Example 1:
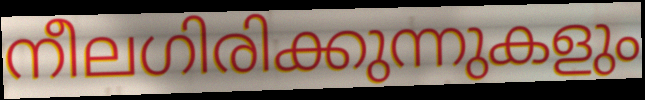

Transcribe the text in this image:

നീലഗിരിക്കുന്നുകളും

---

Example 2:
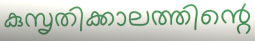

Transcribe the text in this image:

കുസൃതിക്കാലത്തിന്റെ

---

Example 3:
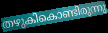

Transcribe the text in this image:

തഴുകികൊണ്ടിരുന്നു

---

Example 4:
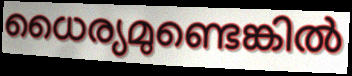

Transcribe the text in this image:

ധൈര്യമുണ്ടെങ്കിൽ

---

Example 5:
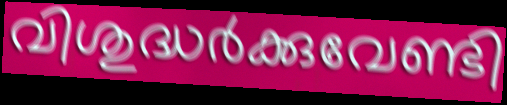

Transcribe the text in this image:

വിശുദ്ധർക്കുവേണ്ടി